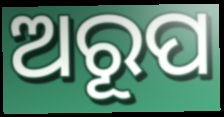
ଅରୂପ